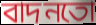
বাদনতো